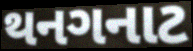
થનગનાટ